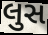
લુસ